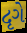
દૃગે